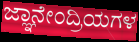
ಜ್ಞಾನೇಂದ್ರಿಯಗಳ